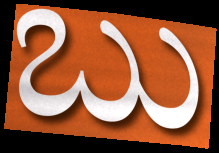
ಬು